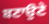
ਬਣਾਉਣੇ